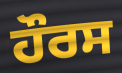
ਹੌਰਸ